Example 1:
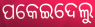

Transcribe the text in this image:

ପକେଇଦେଲୁ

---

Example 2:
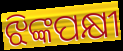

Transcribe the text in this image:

ଝିଙ୍କପକ୍ଷୀ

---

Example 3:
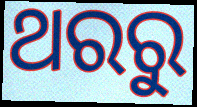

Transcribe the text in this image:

ଥରରୁ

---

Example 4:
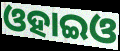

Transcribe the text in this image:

ଓହାଇଓ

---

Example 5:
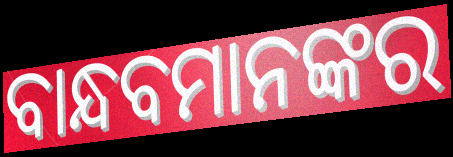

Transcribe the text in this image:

ବାନ୍ଧବମାନଙ୍କର